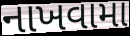
નાખવામા